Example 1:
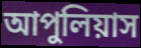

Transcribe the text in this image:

আপুলিয়াস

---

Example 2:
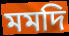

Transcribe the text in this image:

মমদি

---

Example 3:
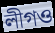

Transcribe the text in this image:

লীগও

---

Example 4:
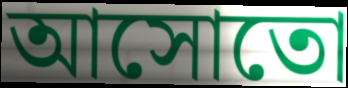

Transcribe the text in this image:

আসোতো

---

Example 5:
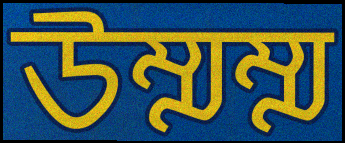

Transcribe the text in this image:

উম্মম্ম